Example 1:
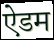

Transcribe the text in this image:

ऐडम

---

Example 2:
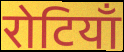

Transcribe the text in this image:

रोटियाँ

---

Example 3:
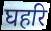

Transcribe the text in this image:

घहरि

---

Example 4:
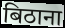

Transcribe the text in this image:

बिठाना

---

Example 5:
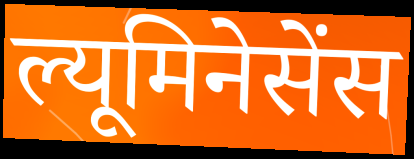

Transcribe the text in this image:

ल्यूमिनेसेंस